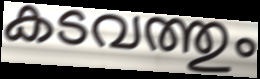
കടവത്തും